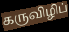
கருவிழிப்